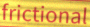
frictional